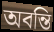
অবন্তি